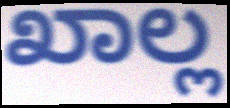
ಖಾಲ್ಲ